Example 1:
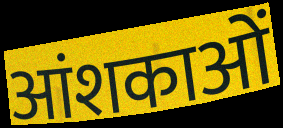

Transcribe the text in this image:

आंशकाओं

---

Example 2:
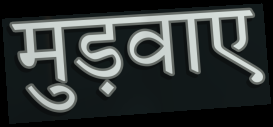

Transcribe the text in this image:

मुड़वाए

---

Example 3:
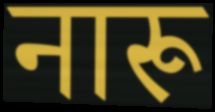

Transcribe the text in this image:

नारू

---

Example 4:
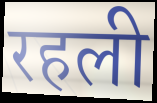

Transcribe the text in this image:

रहली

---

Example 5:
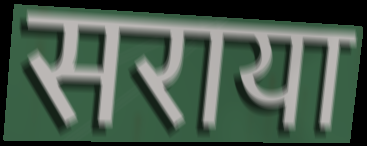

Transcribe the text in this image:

सराया